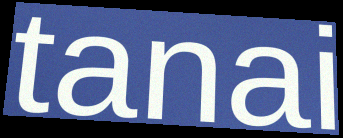
tanai